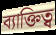
ব্যাক্তিত্ব